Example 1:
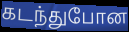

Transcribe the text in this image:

கடந்துபோன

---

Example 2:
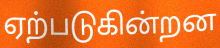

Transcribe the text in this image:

ஏற்படுகின்றன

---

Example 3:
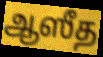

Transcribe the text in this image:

ஆஸீத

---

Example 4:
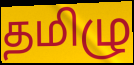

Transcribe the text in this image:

தமிழு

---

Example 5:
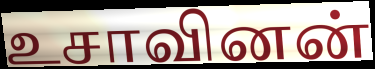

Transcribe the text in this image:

உசாவினன்